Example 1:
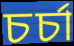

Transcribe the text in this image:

চর্চা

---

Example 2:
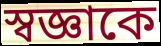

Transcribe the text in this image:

স্বজ্ঞাকে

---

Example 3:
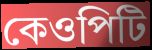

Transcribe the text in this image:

কেওপিটি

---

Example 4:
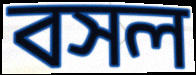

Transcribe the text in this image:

বসল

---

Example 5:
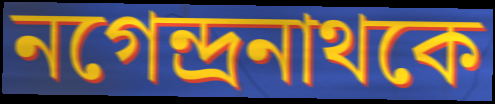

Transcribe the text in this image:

নগেন্দ্রনাথকে